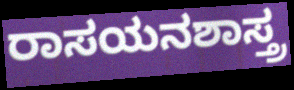
ರಾಸಯನಶಾಸ್ತ್ರ